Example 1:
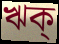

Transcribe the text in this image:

ঋক্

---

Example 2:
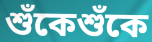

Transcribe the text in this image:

শুঁকেশুঁকে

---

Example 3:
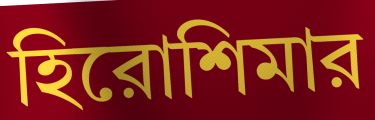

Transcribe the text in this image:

হিরোশিমার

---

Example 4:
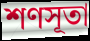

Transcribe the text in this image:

শণসূতা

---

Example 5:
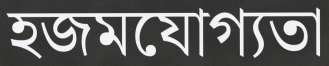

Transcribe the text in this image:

হজমযোগ্যতা